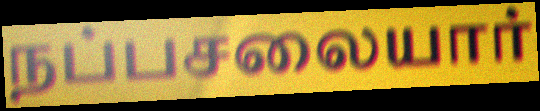
நப்பசலையார்